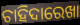
ଚାହିଦାରେଖା